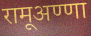
रामूअण्णा